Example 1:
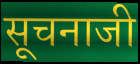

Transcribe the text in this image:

सूचनाजी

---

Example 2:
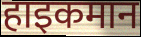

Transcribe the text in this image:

हाइकमान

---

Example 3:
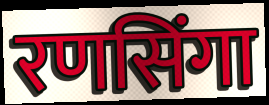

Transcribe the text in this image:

रणसिंगा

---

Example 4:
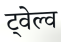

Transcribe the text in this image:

ट्वेल्व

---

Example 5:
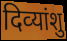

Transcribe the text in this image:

दिव्‍यांशु